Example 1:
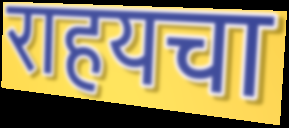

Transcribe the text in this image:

राहयचा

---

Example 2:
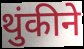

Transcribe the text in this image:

थुंकीने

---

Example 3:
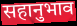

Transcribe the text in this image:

सहानुभाव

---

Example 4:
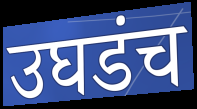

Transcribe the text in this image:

उघडंच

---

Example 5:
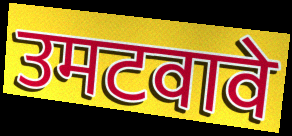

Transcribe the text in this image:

उमटवावे